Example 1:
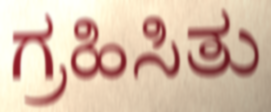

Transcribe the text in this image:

ಗ್ರಹಿಸಿತು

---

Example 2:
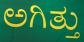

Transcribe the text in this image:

ಅಗಿತ್ತು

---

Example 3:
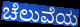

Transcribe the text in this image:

ಚೆಲುವೆಯ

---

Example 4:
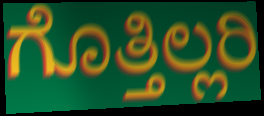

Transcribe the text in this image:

ಗೊತ್ತಿಲ್ಲರಿ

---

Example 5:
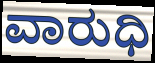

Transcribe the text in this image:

ವಾರುಧಿ